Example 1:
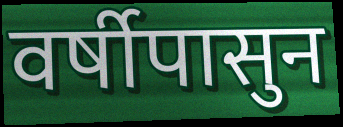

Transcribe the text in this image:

वर्षीपासुन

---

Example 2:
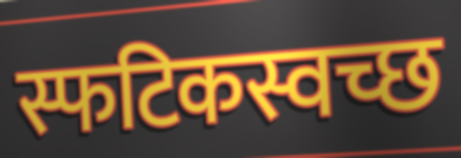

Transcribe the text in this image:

स्फटिकस्वच्छ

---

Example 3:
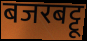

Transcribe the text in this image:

बजरबट्टू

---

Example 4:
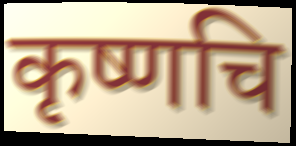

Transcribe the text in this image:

कृष्णचि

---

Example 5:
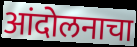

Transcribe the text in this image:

आंदोलनाचा